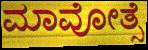
ಮಾವೋತ್ಸೆ